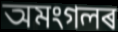
অমংগলৰ